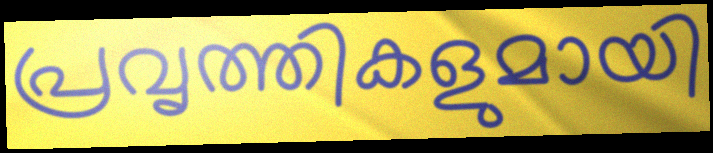
പ്രവൃത്തികളുമായി